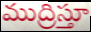
ముద్రిస్తూ